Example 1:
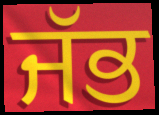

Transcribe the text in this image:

ਜੱਭ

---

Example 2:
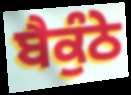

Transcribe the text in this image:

ਬੈਕੁੰਠੇ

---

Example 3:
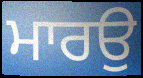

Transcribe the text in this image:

ਮਾਰਉ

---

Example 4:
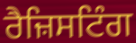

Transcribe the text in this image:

ਰੈਜ਼ਿਸਟਿੰਗ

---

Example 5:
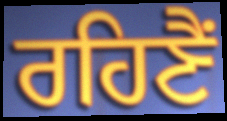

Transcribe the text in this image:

ਰਹਿਣੈਂ